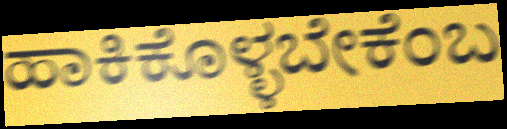
ಹಾಕಿಕೊಳ್ಳಬೇಕೆಂಬ